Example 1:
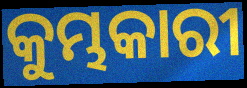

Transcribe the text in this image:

କୁମ୍ଭକାରୀ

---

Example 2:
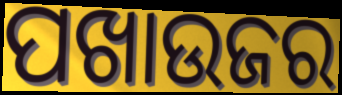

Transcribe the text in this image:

ପଖାଉଜର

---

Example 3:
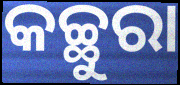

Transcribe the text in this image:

କଚ୍ଛୁରା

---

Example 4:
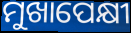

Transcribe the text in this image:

ମୁଖାପେକ୍ଷୀ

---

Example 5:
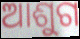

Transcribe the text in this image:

ଆଶୁଗ